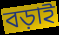
বড়াই